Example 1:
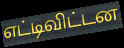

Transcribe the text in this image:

எட்டிவிட்டன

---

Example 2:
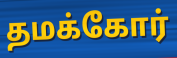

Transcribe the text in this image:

தமக்கோர்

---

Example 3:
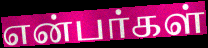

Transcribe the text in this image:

என்பர்கள்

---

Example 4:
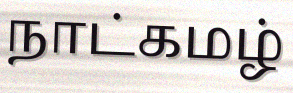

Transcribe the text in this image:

நாட்கமழ்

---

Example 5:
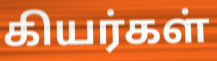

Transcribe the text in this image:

கியர்கள்